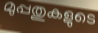
മുപ്പതുകളുടെ